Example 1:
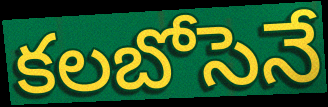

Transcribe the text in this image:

కలబోసెనే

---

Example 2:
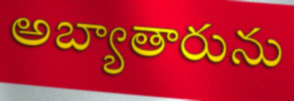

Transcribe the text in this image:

అబ్యాతారును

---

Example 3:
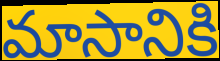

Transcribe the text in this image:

మాసానికి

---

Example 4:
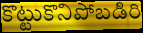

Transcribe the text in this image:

కొట్టుకొనిపోబడిరి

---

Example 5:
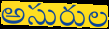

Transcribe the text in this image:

అసురుల